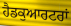
ਹੈਡਕੁਆਰਟਰਾਂ